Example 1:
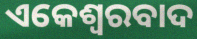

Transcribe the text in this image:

ଏକେଶ୍ୱରବାଦ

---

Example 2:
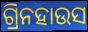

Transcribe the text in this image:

ଗ୍ରିନହାଉସ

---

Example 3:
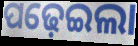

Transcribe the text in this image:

ପଢ଼େଇଲା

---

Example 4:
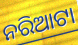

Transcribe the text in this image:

ନରିଆଟା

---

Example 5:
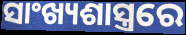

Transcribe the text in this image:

ସାଂଖ୍ୟଶାସ୍ତ୍ରରେ